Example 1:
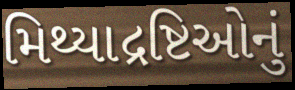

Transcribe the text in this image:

મિથ્યાદ્રષ્ટિઓનું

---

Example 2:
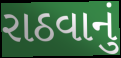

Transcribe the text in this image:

રાઠવાનું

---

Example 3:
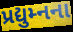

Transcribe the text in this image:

પ્રદ્યુમ્નના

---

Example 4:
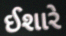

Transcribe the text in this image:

ઈશારે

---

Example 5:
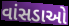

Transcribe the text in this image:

વાંસડાઓ